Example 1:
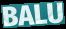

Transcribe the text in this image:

BALU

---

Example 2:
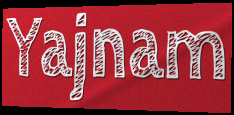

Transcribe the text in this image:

Yajnam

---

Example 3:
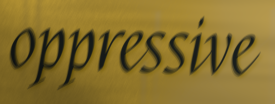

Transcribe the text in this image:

oppressive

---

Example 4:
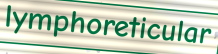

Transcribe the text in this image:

lymphoreticular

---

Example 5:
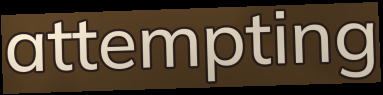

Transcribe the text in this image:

attempting